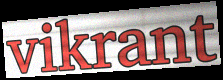
vikrant